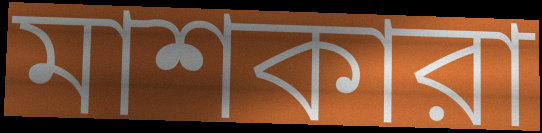
মাশকারা